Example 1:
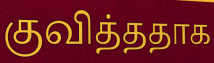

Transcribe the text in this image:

குவித்ததாக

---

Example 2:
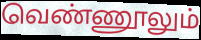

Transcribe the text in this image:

வெண்ணூலும்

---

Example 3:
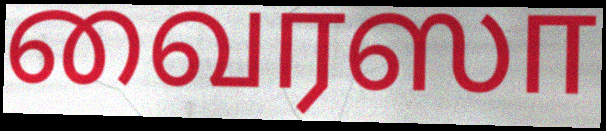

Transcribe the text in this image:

வைரஸா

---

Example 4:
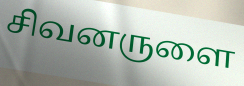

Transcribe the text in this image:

சிவனருளை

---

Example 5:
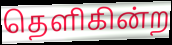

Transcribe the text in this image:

தெளிகின்ற